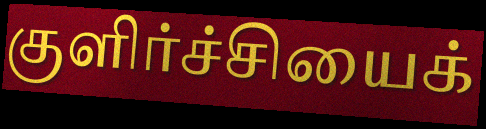
குளிர்ச்சியைக்